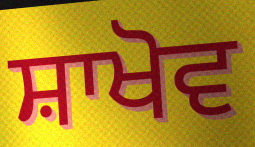
ਸ਼ਾਖੋਵ